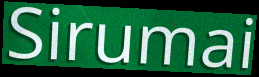
Sirumai